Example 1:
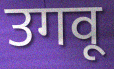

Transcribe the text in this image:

उगवू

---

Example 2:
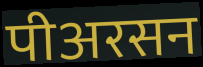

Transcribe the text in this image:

पीअरसन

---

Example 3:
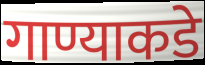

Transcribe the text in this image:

गाण्याकडे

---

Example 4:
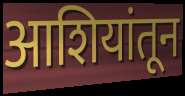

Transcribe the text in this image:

आशियांतून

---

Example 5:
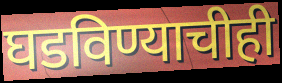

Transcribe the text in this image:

घडविण्याचीही